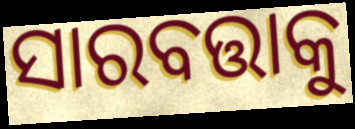
ସାରବତ୍ତାକୁ